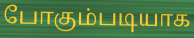
போகும்படியாக